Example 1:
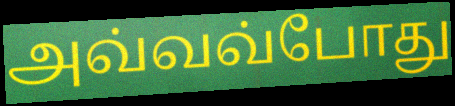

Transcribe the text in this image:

அவ்வவ்போது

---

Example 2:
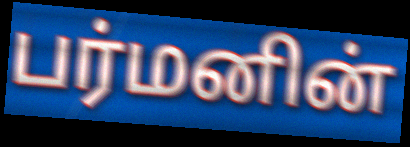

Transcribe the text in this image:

பர்மனின்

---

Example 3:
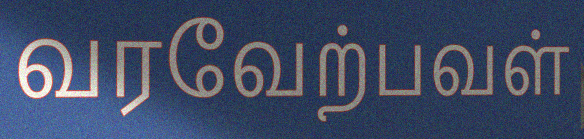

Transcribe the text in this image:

வரவேற்பவள்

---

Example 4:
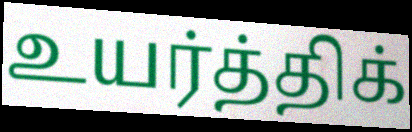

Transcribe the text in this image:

உயர்த்திக்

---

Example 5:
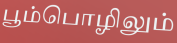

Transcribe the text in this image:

பூம்பொழிலும்